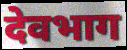
देवभाग